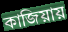
কাজিয়ায়